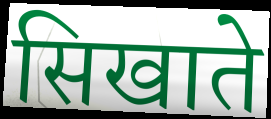
सिखाते